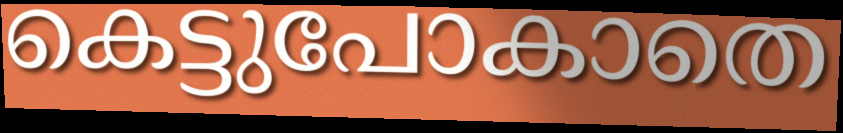
കെട്ടുപോകാതെ